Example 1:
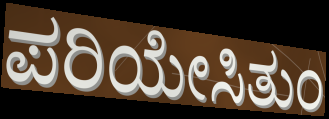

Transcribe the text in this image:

ಪರಿಯೇಸಿತುಂ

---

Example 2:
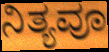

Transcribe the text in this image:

ನಿತ್ಯವೂ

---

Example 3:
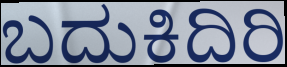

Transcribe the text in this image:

ಬದುಕಿದಿರಿ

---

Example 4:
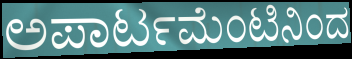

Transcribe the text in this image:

ಅಪಾರ್ಟಮೆಂಟಿನಿಂದ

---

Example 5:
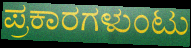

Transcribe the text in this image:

ಪ್ರಕಾರಗಳುಂಟು